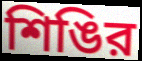
শিঙির